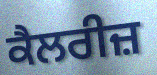
ਕੈਲਰੀਜ਼